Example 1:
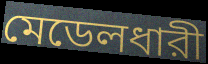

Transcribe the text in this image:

মেডেলধারী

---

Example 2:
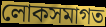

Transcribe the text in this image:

লোকসমাগত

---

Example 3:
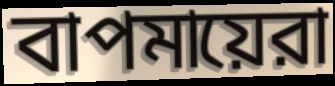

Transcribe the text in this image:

বাপমায়েরা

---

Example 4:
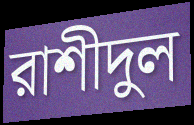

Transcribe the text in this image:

রাশীদুল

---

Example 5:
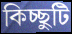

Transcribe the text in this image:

কিচ্ছুটি